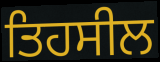
ਤਿਹਸੀਲ